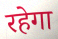
रहेगा